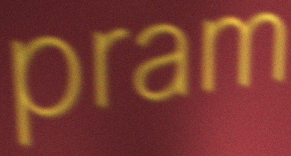
pram